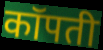
कॉपती